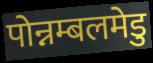
पोन्नम्बलमेडु